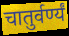
चातुर्वर्ण्यं